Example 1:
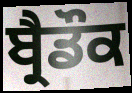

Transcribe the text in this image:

ਬ੍ਰੈਡੌਕ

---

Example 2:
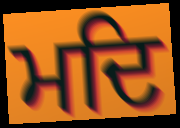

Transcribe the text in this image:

ਮਦਿ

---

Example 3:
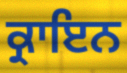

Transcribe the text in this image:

ਕ੍ਰਾਇਨ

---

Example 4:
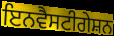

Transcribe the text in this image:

ਇਨਵੈਸਟੀਗੇਸ਼ਨ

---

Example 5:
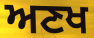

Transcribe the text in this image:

ਅਣਖ